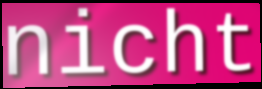
nicht